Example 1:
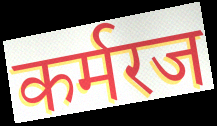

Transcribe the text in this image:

कर्मरज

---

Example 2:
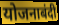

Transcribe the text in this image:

योजनाबंदी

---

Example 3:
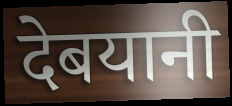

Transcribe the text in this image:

देबयानी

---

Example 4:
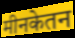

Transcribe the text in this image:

मीनकेतन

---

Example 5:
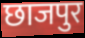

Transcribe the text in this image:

छाजपुर